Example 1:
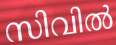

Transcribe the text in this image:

സിവിൽ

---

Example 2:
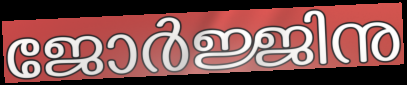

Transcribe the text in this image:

ജോർജ്ജിനു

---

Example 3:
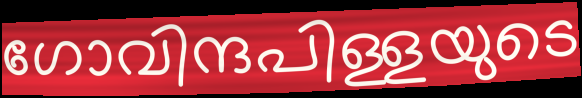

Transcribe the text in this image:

ഗോവിന്ദപിള്ളയുടെ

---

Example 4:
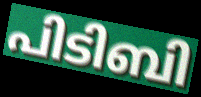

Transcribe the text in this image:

പിടിബി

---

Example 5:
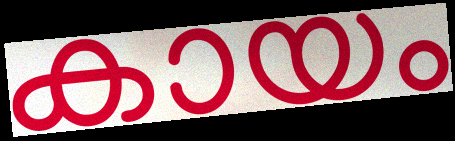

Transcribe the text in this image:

കായം